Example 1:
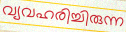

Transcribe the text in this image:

വ്യവഹരിച്ചിരുന്ന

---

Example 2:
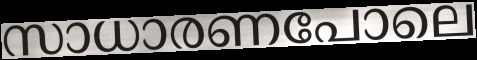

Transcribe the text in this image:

സാധാരണപോലെ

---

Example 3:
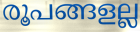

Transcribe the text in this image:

രൂപങ്ങളല്ല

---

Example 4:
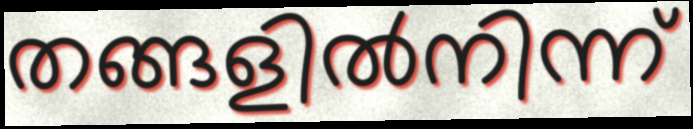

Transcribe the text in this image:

തങ്ങളിൽനിന്ന്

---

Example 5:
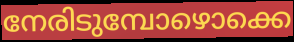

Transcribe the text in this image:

നേരിടുമ്പോഴൊക്കെ